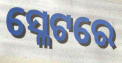
ସ୍ଳେଟରେ